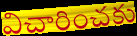
విచారించకు